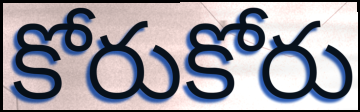
కోరుకోరు